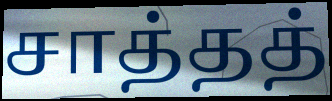
சாத்தத்